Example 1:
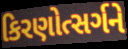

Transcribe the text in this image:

કિરણોત્સર્ગને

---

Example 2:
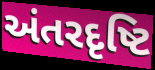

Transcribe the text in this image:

અંતરદૃષ્ટિ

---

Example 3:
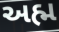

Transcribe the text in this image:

અહ્મ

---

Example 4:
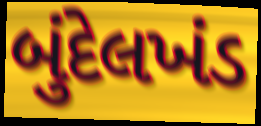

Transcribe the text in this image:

બુંદેલખંડ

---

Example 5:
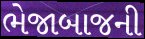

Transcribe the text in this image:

ભેજાબાજની